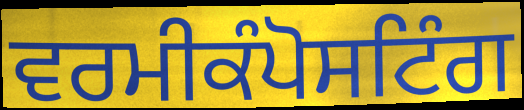
ਵਰਮੀਕੰਪੋਸਟਿੰਗ